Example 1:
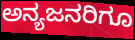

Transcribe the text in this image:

ಅನ್ಯಜನರಿಗೂ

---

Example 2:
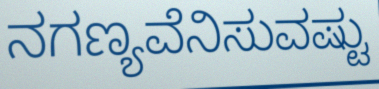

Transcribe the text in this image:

ನಗಣ್ಯವೆನಿಸುವಷ್ಟು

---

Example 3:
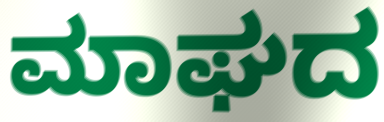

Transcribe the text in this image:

ಮಾಘದ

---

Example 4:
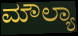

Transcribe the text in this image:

ಮೌಲ್ಯಾ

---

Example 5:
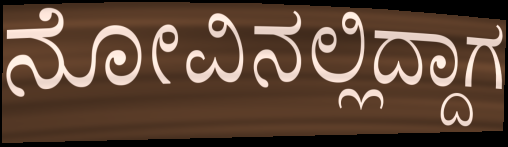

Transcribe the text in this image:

ನೋವಿನಲ್ಲಿದ್ದಾಗ